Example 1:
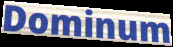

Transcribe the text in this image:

Dominum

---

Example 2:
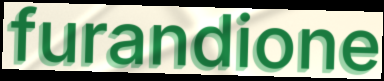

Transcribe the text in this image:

furandione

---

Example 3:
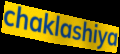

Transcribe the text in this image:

chaklashiya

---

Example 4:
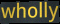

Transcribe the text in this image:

wholly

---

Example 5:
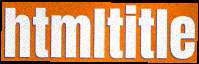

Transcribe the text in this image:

htmltitle